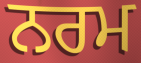
ਨਰਮ